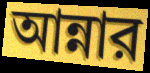
আন্নার